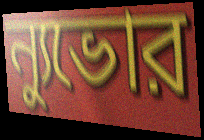
ন্যুভোর